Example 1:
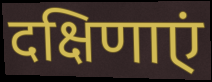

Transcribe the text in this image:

दक्षिणाएं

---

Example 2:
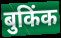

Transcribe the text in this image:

बुकिंक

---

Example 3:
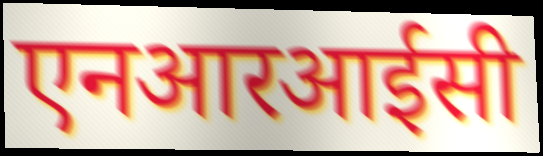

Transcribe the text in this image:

एनआरआईसी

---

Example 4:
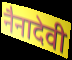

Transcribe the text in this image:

नैनादेवी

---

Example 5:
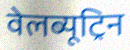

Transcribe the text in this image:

वेलब्यूट्रिन